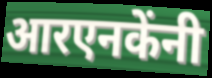
आरएनकेंनी